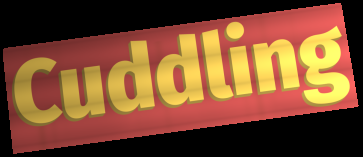
Cuddling